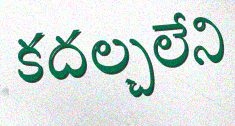
కదల్చలేని